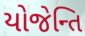
યોજેન્તિ